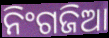
ନିଂଗଜିଆ